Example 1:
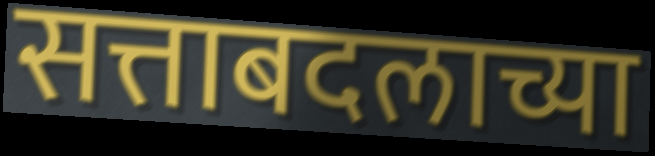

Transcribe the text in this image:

सत्ताबदलाच्या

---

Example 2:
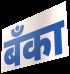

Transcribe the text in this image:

बँका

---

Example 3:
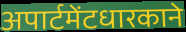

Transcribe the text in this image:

अपार्टमेंटधारकाने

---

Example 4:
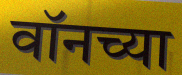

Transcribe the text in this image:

वॉनच्या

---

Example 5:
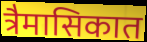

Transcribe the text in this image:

त्रैमासिकात